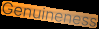
Genuineness